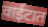
वाईटात